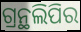
ଗ୍ରନ୍ଥଲିପିର